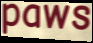
paws